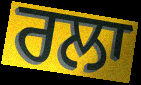
ਰਲਾ